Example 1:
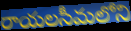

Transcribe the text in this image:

రాయలసీమలోని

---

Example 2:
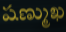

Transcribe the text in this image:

షణ్ముఖ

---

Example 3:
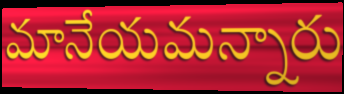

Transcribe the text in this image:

మానేయమన్నారు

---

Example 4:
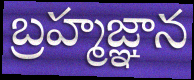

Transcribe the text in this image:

బ్రహ్మజ్ఞాన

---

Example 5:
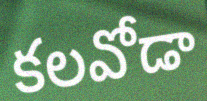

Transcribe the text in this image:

కలవోడా